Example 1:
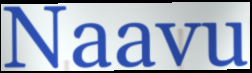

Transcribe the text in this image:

Naavu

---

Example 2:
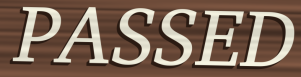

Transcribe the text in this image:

PASSED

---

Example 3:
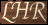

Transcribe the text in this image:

LHR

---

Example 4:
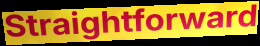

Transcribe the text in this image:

Straightforward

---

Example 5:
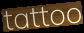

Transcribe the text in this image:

tattoo